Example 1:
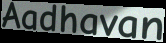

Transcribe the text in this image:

Aadhavan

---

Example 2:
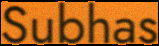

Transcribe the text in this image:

Subhas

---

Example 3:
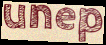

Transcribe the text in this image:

unep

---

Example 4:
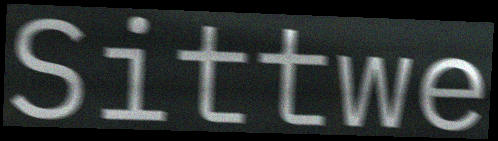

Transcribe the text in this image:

Sittwe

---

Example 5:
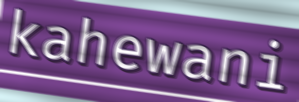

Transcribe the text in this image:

kahewani